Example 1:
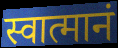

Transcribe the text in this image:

स्वात्मानं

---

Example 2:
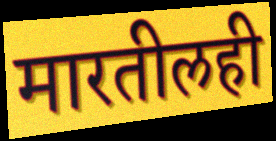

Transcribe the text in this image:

मारतीलही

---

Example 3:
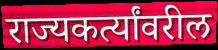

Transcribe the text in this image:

राज्यकर्त्यांवरील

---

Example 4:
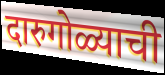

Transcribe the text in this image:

दारुगोळ्याची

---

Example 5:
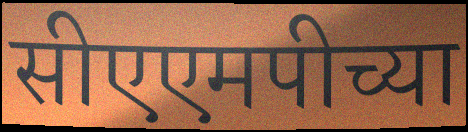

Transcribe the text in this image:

सीएएमपीच्या